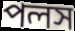
পলস